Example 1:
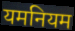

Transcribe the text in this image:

यमनियम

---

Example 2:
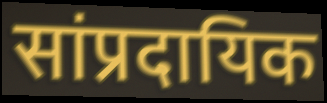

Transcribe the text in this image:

सांप्रदायिक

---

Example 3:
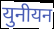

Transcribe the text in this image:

युनीयन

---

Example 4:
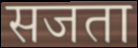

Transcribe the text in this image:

सजता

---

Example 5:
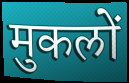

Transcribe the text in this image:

मुकलों